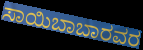
ಸಾಯಿಬಾಬಾರವರ